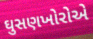
ઘુસણખોરોએ